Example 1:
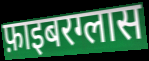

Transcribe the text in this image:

फ़ाइबरग्लास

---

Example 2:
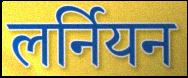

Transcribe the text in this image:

लर्नियन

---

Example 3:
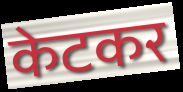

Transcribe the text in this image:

केटकर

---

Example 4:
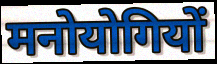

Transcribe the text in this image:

मनोयोगियों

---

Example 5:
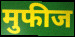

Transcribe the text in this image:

मुफीज